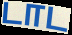
டாட